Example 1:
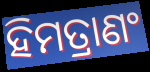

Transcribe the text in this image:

ହିମତ୍ରାଣଂ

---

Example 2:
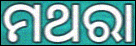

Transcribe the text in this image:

ମଥରା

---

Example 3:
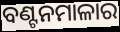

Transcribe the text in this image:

ବଣ୍ଟନମାଳାର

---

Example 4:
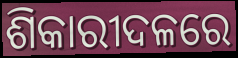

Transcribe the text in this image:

ଶିକାରୀଦଳରେ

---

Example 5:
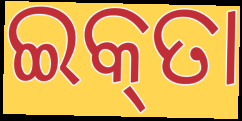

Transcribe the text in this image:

ଇକ୍‌ତା